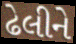
ઢેલીને